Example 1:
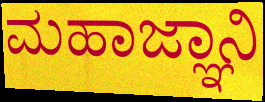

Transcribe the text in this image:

ಮಹಾಜ್ಞಾನಿ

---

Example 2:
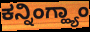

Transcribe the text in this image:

ಕನ್ನಿಂಗ್ಹ್ಯಾಂ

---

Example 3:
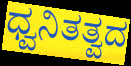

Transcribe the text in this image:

ಧ್ವನಿತತ್ವದ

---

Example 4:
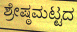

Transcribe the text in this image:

ಶ್ರೇಷ್ಠಮಟ್ಟದ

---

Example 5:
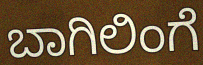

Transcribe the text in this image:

ಬಾಗಿಲಿಂಗೆ